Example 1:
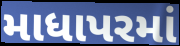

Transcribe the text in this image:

માધાપરમાં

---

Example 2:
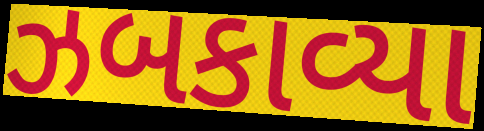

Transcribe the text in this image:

ઝબકાવ્યા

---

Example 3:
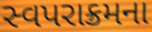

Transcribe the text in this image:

સ્વપરાક્રમના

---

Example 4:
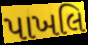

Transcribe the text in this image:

પાખલિ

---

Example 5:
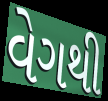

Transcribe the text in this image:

વેગથી